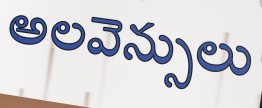
అలవెన్సులు